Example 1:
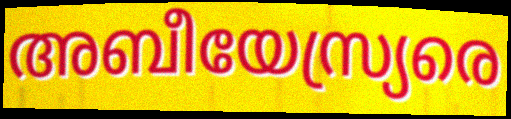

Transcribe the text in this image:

അബീയേസ്ര്യരെ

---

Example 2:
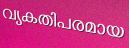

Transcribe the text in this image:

വ്യകതിപരമായ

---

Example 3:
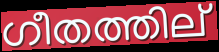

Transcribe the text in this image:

ഗീതത്തില്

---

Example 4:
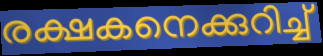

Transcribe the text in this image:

രക്ഷകനെക്കുറിച്ച്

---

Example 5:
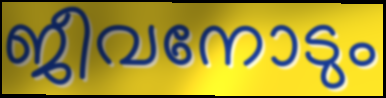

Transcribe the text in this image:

ജീവനോടും